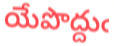
యేపొద్దుఁ